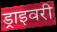
ड्राइवरी